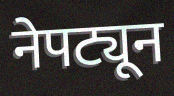
नेपट्यून